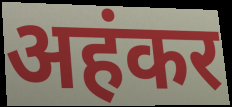
अहंकर